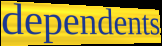
dependents